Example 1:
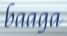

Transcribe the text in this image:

baaga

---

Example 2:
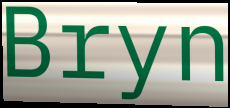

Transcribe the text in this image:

Bryn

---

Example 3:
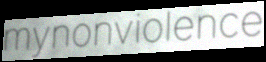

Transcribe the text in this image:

mynonviolence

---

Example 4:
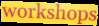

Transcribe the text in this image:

workshops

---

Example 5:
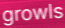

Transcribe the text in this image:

growls